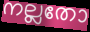
നല്ലതോ